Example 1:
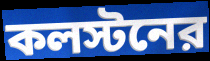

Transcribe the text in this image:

কলস্টনের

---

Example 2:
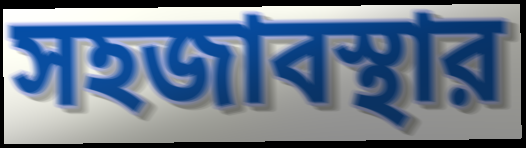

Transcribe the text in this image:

সহজাবস্থার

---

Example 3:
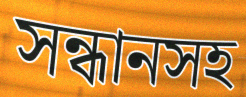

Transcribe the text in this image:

সন্ধানসহ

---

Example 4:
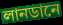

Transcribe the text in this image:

লানডানে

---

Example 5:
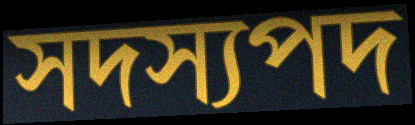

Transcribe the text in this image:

সদস্যপদ